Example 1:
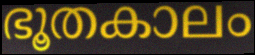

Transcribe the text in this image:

ഭൂതകാലം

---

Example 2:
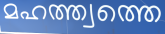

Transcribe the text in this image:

മഹത്ത്വത്തെ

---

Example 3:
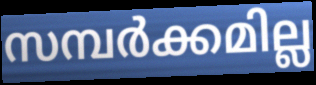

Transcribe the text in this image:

സമ്പർക്കമില്ല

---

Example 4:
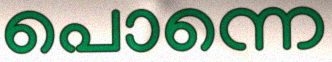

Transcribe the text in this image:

പൊന്നെ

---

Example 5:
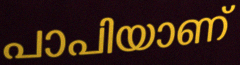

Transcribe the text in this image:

പാപിയാണ്